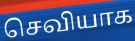
செவியாக